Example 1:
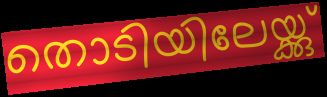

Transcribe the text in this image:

തൊടിയിലേയ്ക്കു്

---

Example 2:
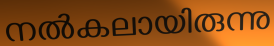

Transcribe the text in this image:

നൽകലായിരുന്നു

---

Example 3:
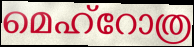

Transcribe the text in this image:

മെഹ്റോത്ര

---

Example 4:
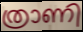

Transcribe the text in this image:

ത്രാണി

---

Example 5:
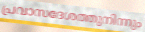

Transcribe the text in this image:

പ്രവാസദേശത്തുനിന്നും